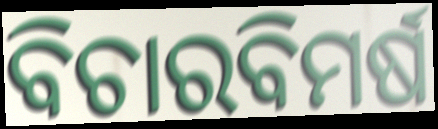
ବିଚାରବିମର୍ଷ